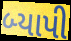
બ્યાપી